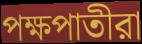
পক্ষপাতীরা